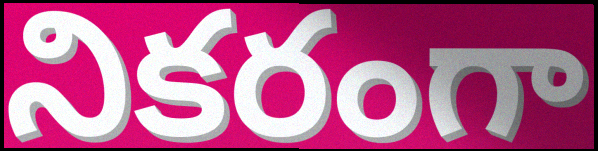
నికరంగా